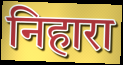
निहारा